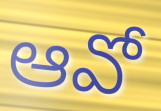
ఆవో